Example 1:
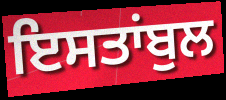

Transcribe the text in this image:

ਇਸਤਾਂਬੁਲ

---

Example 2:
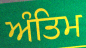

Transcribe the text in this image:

ਅੰਤਿਮ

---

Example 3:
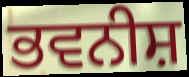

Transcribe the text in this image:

ਭਵਨੀਸ਼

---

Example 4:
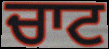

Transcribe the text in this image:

ਚਾਟ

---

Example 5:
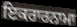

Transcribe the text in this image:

ਇਕਰਾਰਨਾਮਾ